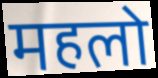
महलो